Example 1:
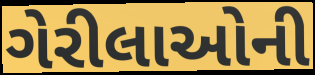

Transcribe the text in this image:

ગેરીલાઓની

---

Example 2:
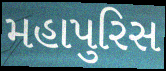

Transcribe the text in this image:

મહાપુરિસ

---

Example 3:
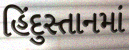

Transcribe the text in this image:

હિંદુસ્તાનમાં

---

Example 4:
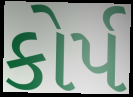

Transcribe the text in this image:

કોર્પ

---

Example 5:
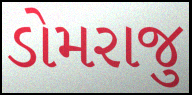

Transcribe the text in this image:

ડોમરાજુ